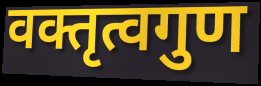
वक्तृत्वगुण